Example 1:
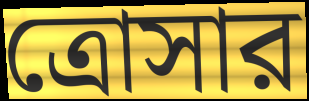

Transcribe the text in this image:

ত্রোসার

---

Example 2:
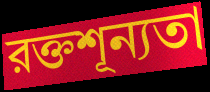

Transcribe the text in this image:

রক্তশূন্যতা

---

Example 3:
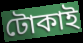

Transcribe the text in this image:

টোকাই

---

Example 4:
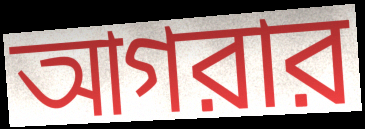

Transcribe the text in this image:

আগরার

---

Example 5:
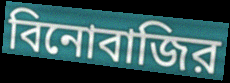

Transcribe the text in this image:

বিনোবাজির